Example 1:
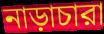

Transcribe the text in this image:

নাড়াচারা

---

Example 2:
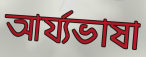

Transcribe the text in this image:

আর্য্যভাষা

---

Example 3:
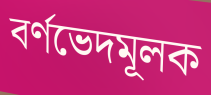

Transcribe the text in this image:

বর্ণভেদমূলক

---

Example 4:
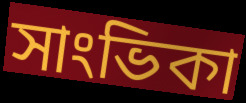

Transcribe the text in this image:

সাংভিকা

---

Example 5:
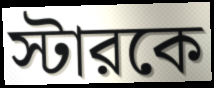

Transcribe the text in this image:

স্টারকে